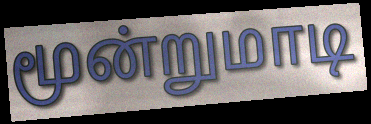
மூன்றுமாடி